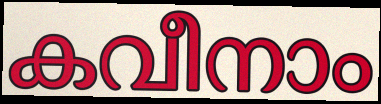
കവീനാം